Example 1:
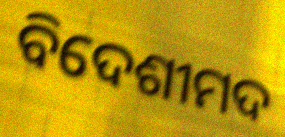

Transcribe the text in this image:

ବିଦେଶୀମଦ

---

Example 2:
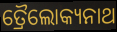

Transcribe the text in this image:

ତ୍ରୈଲୋକ୍ୟନାଥ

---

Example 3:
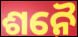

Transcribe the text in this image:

ଶନୈ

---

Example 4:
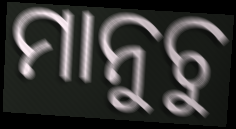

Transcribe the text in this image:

ମାନୁଚୁ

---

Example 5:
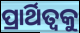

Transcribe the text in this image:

ପ୍ରାର୍ଥିତ୍ୱକୁ